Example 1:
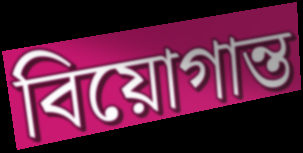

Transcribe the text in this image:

বিয়োগান্ত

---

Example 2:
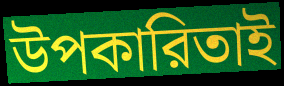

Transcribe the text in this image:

উপকারিতাই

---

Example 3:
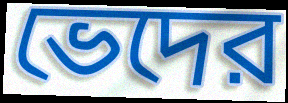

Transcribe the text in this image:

ভেদের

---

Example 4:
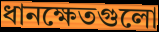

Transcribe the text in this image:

ধানক্ষেতগুলো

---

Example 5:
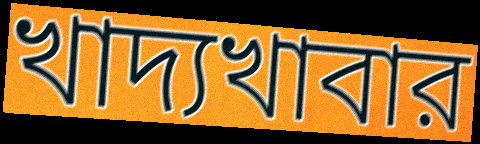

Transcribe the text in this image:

খাদ্যখাবার